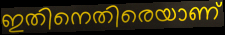
ഇതിനെതിരെയാണ്